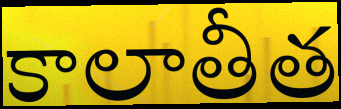
కాలాతీత